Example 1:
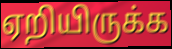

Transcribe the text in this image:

ஏறியிருக்க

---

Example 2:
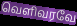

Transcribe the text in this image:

வெளிவரவே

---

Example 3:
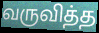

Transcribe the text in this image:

வருவித்த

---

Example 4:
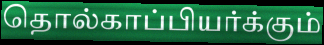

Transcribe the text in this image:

தொல்காப்பியர்க்கும்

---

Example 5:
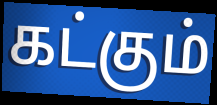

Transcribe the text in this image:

கட்கும்